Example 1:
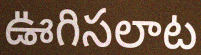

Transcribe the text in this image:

ఊగిసలాట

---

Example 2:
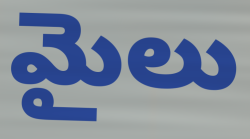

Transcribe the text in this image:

మైలు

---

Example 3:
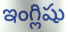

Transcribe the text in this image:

ఇంగ్లిషు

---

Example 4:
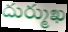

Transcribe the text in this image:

దుర్ముఖ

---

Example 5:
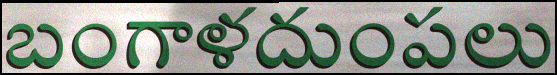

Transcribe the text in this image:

బంగాళదుంపలు